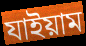
যাইয়াম